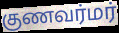
குணவர்மர்